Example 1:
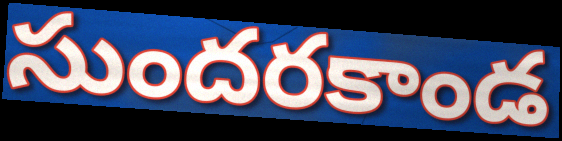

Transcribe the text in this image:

సుందరకాండ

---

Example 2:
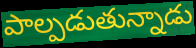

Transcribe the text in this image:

పాల్పడుతున్నాడు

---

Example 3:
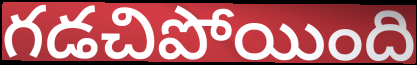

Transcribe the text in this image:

గడచిపోయింది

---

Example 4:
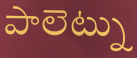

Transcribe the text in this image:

పాలెట్ను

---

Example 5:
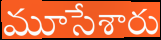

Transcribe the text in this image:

మూసేశారు